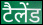
टैलेंड